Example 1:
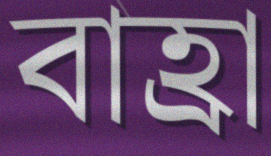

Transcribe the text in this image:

বাহ্রা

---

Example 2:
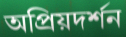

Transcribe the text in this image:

অপ্রিয়দর্শন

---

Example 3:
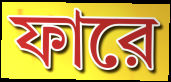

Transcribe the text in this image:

ফারে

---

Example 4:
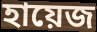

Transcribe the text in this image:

হায়েজ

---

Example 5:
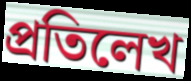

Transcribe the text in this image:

প্রতিলেখ